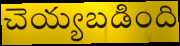
చెయ్యబడింది